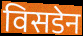
विसडेन